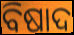
ବିଷାଦ